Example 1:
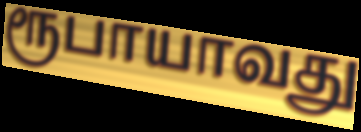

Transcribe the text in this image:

ரூபாயாவது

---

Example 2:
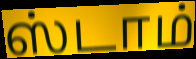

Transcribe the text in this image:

ஸ்டாம்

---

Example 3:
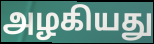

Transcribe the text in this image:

அழகியது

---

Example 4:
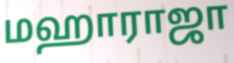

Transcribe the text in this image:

மஹாராஜா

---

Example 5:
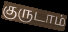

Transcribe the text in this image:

குருடாம்